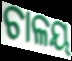
ଚାଳୟ